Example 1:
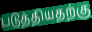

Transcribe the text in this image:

படுத்தியதற்கு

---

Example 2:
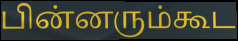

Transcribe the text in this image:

பின்னரும்கூட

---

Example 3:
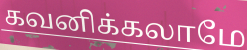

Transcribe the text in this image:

கவனிக்கலாமே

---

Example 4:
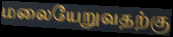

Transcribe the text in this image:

மலையேறுவதற்கு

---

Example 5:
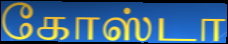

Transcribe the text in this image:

கோஸ்டா